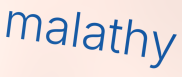
malathy